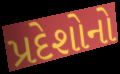
પ્રદેશોનો